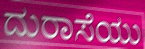
ದುರಾಸೆಯು